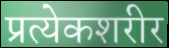
प्रत्येकशरीर